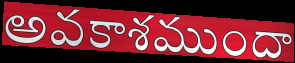
అవకాశముందా